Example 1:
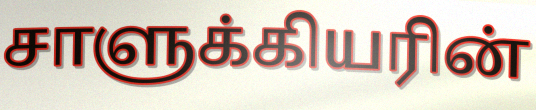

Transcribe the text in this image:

சாளுக்கியரின்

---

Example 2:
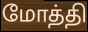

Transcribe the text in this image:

மோத்தி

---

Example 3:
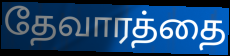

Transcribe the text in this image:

தேவாரத்தை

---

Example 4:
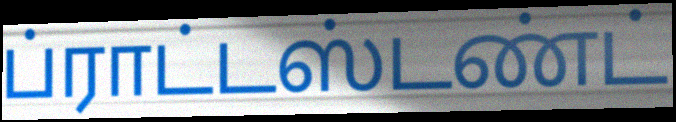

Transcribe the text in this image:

ப்ராட்டஸ்டண்ட்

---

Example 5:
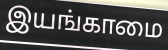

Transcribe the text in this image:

இயங்காமை